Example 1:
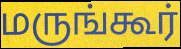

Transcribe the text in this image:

மருங்கூர்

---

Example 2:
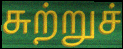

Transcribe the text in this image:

சுற்றுச்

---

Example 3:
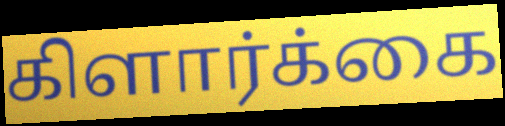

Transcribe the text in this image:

கிளார்க்கை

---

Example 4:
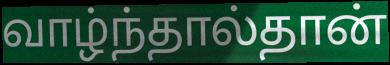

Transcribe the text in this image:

வாழ்ந்தால்தான்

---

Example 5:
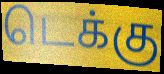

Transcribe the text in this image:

டெக்கு